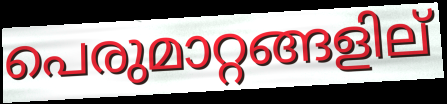
പെരുമാറ്റങ്ങളില്